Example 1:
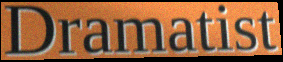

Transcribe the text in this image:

Dramatist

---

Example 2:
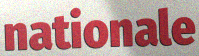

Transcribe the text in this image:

nationale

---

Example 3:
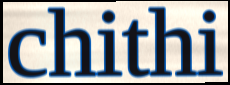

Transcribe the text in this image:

chithi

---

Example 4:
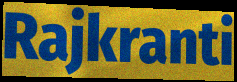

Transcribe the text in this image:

Rajkranti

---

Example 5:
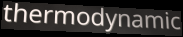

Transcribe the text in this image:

thermodynamic